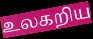
உலகறிய